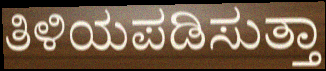
ತಿಳಿಯಪಡಿಸುತ್ತಾ